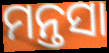
ମନ୍ତସା